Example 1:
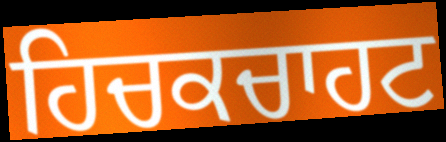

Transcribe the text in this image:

ਹਿਚਕਚਾਹਟ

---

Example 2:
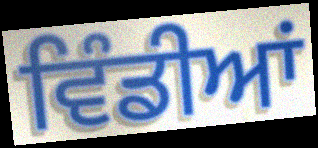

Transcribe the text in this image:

ਵਿੰਡੀਆਂ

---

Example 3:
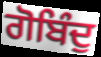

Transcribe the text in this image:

ਗੋਬਿੰਦੁ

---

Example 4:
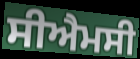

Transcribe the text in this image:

ਸੀਐਮਸੀ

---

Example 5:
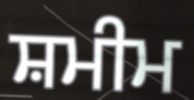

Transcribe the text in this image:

ਸ਼ਮੀਮ